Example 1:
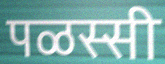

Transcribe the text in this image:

पळस्सी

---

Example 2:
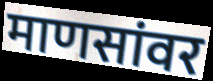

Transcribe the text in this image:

माणसांवर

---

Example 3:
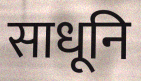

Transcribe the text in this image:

साधूनि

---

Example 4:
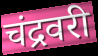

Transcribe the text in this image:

चंद्रवरी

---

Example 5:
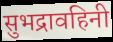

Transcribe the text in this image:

सुभद्रावहिनी